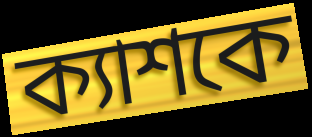
ক্যাশকে